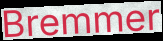
Bremmer